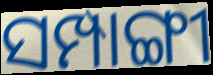
ସମ୍ପାଙ୍ଗୀ